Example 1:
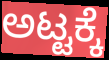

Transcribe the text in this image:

ಅಟ್ಟಕ್ಕೆ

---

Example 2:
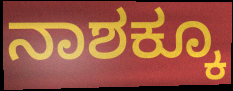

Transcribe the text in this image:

ನಾಶಕ್ಕೂ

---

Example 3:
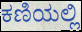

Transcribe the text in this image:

ಕಣಿಯಲ್ಲಿ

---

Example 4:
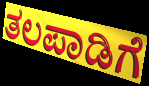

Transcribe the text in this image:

ತಲಪಾಡಿಗೆ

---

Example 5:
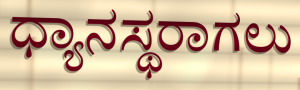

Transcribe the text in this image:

ಧ್ಯಾನಸ್ಥರಾಗಲು